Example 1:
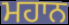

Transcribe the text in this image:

ਮਹਾਨ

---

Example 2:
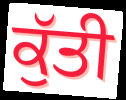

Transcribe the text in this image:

ਕੁੱਤੀ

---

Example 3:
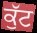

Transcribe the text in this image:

ਕੁੱਟ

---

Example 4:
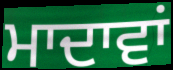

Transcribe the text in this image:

ਮਾਦਾਵਾਂ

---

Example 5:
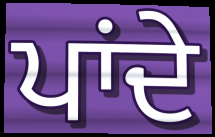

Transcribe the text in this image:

ਪਾਂਦੇ